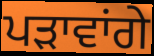
ਪੜਾਵਾਂਗੇ